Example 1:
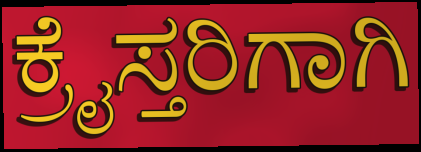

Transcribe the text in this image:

ಕ್ರೈಸ್ತರಿಗಾಗಿ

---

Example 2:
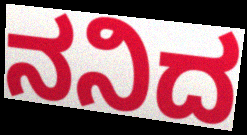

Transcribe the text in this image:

ನನಿದ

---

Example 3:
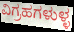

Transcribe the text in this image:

ವಿಗ್ರಹಗಳುಳ್ಳ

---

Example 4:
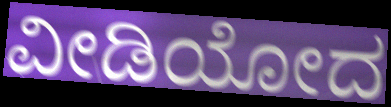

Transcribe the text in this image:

ವೀಡಿಯೋದ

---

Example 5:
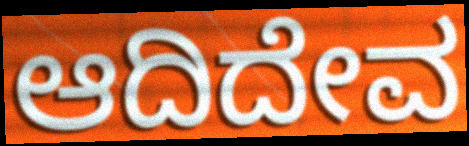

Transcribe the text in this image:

ಆದಿದೇವ